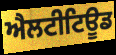
ਐਲਟੀਟਿਊਡ